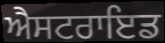
ਐਸਟਰਾਇਡ